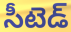
సీటెడ్